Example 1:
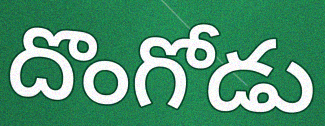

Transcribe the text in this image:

దొంగోడు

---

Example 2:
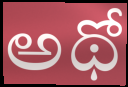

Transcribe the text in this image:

అథో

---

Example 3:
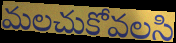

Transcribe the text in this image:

మలచుకోవలసి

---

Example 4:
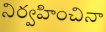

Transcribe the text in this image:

నిర్వహించినా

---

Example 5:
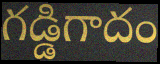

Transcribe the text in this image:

గడ్డిగాదం